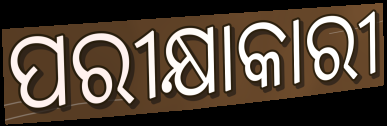
ପରୀକ୍ଷାକାରୀ